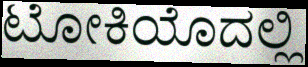
ಟೋಕಿಯೊದಲ್ಲಿ